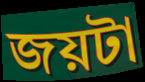
জয়টা